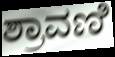
ಶ್ರಾವಣಿ